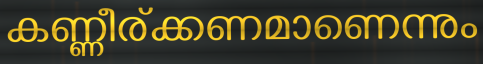
കണ്ണീര്ക്കണമാണെന്നും